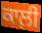
ਕਾਲ਼ੀ